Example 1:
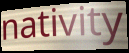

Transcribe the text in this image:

nativity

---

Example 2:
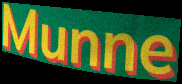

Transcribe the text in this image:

Munne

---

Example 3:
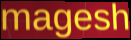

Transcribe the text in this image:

magesh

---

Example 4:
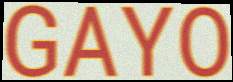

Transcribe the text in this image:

GAYO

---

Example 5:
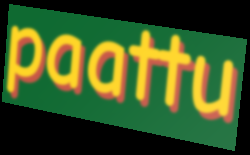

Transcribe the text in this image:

paattu